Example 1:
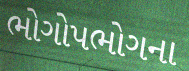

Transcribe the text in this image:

ભોગોપભોગના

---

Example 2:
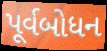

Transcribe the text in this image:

પૂર્વબોધન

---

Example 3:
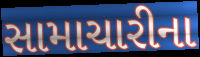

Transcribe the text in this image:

સામાચારીના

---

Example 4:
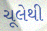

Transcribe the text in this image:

ચૂલેથી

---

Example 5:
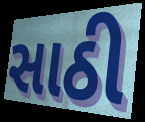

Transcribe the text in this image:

સાઠી